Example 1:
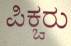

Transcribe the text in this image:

ಪಿಕ್ಚರು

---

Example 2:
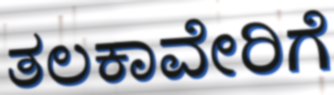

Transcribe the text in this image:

ತಲಕಾವೇರಿಗೆ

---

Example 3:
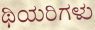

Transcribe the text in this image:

ಥಿಯರಿಗಳು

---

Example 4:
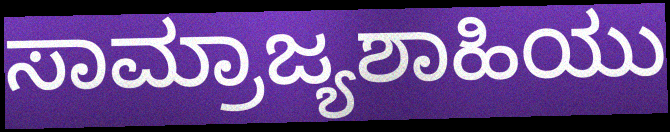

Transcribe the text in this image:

ಸಾಮ್ರಾಜ್ಯಶಾಹಿಯು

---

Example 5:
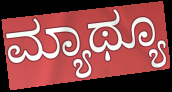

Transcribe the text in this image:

ಮ್ಯಾಥ್ಯೂ